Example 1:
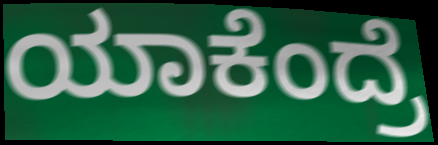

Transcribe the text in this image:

ಯಾಕೆಂದ್ರೆ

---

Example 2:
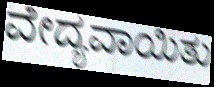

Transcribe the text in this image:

ವೇದ್ಯವಾಯಿತು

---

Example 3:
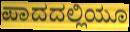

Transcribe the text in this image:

ಪಾದದಲ್ಲಿಯೂ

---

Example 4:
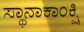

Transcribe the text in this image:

ಸ್ಥಾನಾಕಾಂಕ್ಷಿ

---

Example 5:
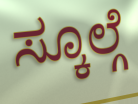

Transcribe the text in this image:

ಸ್ಕೂಲ್ಗೆ